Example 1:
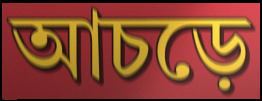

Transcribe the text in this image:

আচড়ে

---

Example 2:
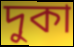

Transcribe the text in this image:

দুকা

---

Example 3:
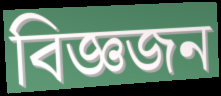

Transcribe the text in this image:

বিজ্ঞজন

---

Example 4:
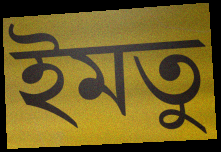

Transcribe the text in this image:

ইমতু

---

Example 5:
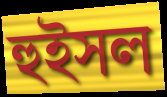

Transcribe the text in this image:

হুইসল